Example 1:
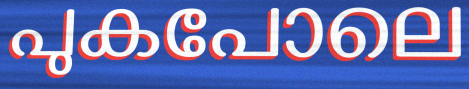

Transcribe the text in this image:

പുകപോലെ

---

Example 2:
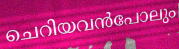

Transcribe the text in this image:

ചെറിയവൻപോലും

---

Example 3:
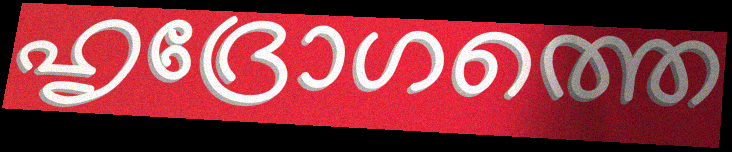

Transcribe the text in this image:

ഹൃദ്രോഗത്തെ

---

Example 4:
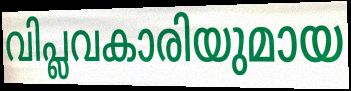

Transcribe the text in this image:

വിപ്ലവകാരിയുമായ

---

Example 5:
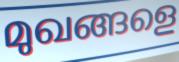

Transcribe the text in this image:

മുഖങ്ങളെ